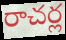
రాచర్ల